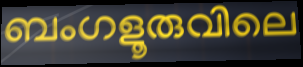
ബംഗളൂരുവിലെ